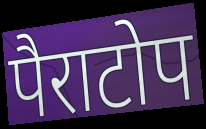
पैराटोप